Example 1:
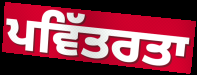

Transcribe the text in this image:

ਪਵਿੱਤਰਤਾ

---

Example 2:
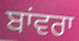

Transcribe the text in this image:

ਬਾਂਵਰਾ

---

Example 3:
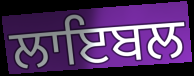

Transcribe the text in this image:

ਲਾਇਬਲ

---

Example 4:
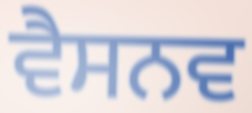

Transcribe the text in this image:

ਵੈਸਨਵ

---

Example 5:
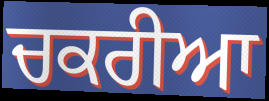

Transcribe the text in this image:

ਚਕਰੀਆ